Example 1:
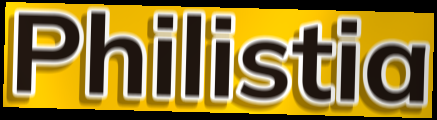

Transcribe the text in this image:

Philistia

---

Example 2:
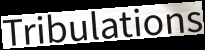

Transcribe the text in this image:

Tribulations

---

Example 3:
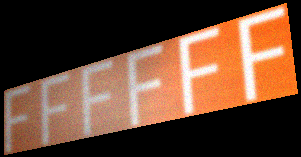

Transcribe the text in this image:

FFFFFF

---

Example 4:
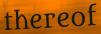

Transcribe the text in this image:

thereof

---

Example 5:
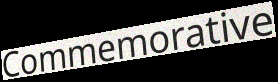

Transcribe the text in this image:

Commemorative